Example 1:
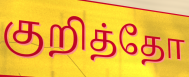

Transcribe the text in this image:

குறித்தோ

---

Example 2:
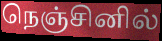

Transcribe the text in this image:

நெஞ்சினில்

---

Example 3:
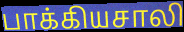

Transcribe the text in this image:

பாக்கியசாலி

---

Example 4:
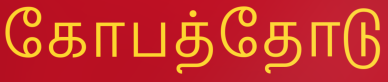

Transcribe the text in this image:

கோபத்தோடு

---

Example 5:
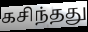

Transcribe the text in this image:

கசிந்தது